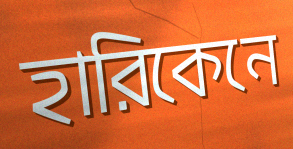
হারিকেনে